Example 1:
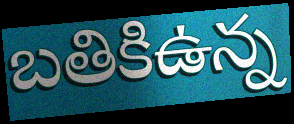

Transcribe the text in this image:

బతికిఉన్న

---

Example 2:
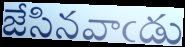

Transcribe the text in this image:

జేసినవాఁడు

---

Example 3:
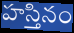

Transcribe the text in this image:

హస్తినం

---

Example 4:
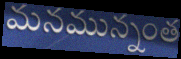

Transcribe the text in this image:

మనమున్నంత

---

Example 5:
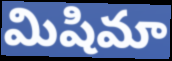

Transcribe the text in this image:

మిషిమా